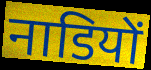
नाडियों